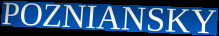
POZNIANSKY